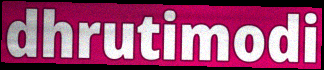
dhrutimodi